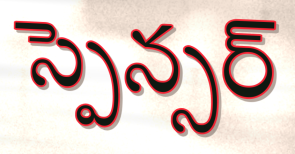
స్పెన్సర్